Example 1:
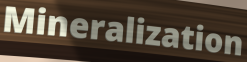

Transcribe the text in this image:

Mineralization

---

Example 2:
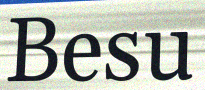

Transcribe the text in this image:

Besu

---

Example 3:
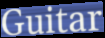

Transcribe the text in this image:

Guitar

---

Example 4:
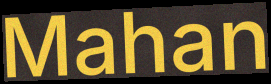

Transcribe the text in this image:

Mahan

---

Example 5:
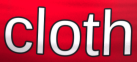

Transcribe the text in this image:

cloth